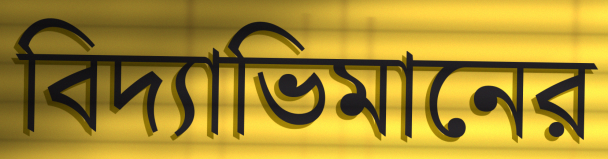
বিদ্যাভিমানের